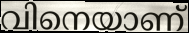
വിനെയാണ്